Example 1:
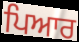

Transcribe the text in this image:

ਪਿਆਰ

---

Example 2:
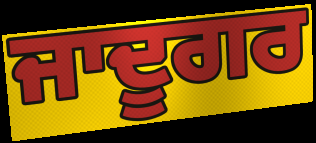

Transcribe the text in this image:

ਜਾਦੂਗਰ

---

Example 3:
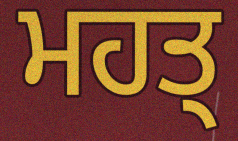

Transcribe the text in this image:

ਮਹਤ੍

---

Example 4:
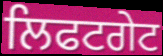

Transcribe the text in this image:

ਲਿਫਟਗੇਟ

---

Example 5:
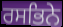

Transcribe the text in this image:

ਰਸਭਿਨੇ